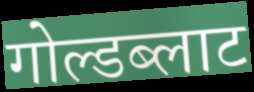
गोल्डब्लाट